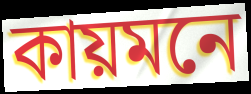
কায়মনে